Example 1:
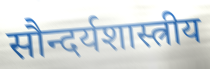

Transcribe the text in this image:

सौन्दर्यशास्त्रीय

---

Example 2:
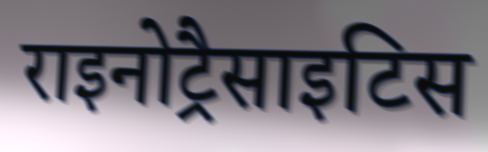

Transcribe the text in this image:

राइनोट्रैसाइटिस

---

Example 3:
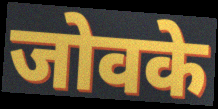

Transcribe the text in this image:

जोवके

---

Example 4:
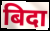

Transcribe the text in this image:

बिदा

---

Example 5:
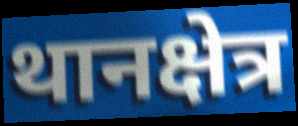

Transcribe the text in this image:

थानक्षेत्र